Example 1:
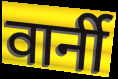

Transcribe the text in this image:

वार्नी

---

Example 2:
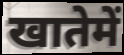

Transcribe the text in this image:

खातेमें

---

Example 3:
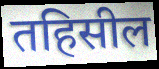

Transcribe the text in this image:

तहिसील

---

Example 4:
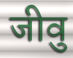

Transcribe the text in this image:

जीवु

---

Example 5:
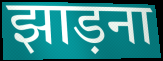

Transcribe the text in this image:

झाड़ना